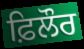
ਫ਼ਿਲੌਰ